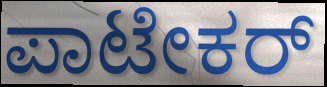
ಪಾಟೇಕರ್